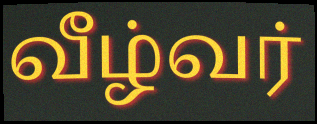
வீழ்வர்